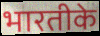
भारतीके